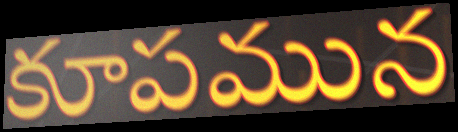
కూపమున